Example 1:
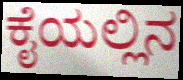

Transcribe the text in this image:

ಕೈಯಲ್ಲಿನ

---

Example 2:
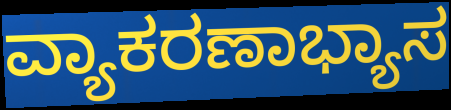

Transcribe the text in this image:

ವ್ಯಾಕರಣಾಭ್ಯಾಸ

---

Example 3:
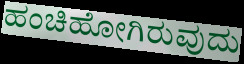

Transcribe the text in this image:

ಹಂಚಿಹೋಗಿರುವುದು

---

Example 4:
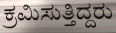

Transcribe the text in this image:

ಕ್ರಮಿಸುತ್ತಿದ್ದರು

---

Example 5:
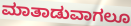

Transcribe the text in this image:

ಮಾತಾಡುವಾಗಲೂ